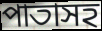
পাতাসহ